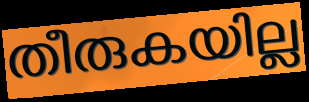
തീരുകയില്ല